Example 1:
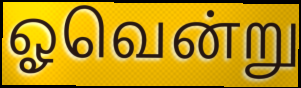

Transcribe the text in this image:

ஓவென்று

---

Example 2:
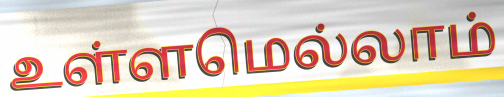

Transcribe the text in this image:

உள்ளமெல்லாம்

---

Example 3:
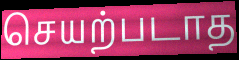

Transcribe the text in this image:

செயற்படாத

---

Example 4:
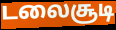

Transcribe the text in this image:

டலைசூடி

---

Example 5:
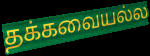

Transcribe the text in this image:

தக்கவையல்ல